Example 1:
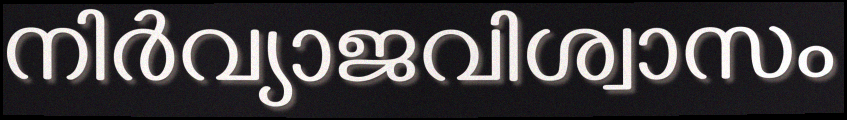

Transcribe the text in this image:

നിർവ്യാജവിശ്വാസം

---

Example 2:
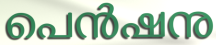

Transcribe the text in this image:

പെൻഷനു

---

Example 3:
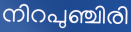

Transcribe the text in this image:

നിറപുഞ്ചിരി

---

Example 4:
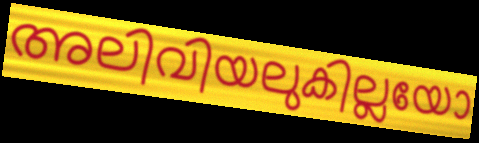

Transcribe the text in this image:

അലിവിയലുകില്ലയോ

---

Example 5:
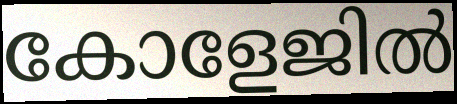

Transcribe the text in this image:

കോളേജിൽ